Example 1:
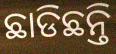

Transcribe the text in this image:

ଛାଡିଛନ୍ତି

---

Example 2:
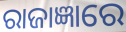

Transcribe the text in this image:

ରାଜାଜ୍ଞାରେ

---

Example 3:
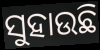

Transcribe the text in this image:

ସୁହାଉଛି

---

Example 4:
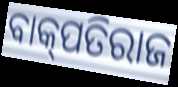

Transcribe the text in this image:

ବାକ୍‌ପତିରାଜ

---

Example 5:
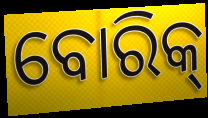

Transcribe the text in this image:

ବୋରିକ୍